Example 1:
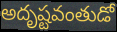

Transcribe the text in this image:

అదృష్టవంతుడో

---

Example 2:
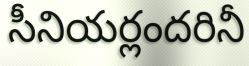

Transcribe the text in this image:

సీనియర్లందరినీ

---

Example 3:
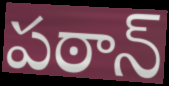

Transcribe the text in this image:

పఠాన్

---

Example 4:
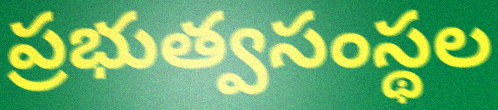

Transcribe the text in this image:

ప్రభుత్వసంస్థల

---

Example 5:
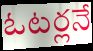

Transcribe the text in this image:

ఓటర్లనే